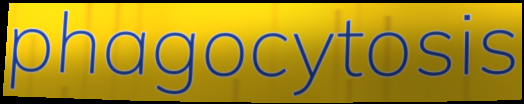
phagocytosis